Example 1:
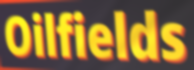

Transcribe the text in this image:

Oilfields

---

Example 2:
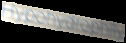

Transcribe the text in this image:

Hypohydrophily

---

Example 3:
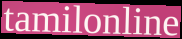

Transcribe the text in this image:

tamilonline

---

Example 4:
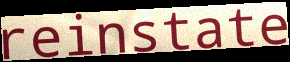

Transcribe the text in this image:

reinstate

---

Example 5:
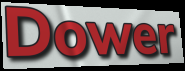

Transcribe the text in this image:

Dower